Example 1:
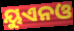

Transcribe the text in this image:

ୟୁଏନଓ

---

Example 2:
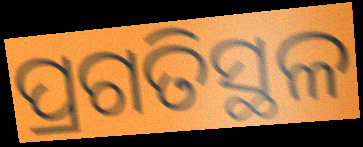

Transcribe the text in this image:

ପ୍ରଗତିସ୍ଥଳ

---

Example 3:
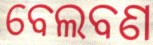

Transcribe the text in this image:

ବେଲବଣ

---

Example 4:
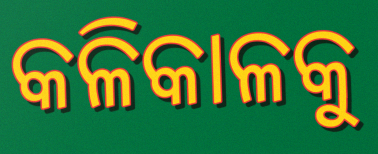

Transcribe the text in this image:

କଳିକାଳକୁ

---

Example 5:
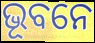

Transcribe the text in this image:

ଭୂବନେ